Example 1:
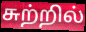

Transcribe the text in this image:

சுற்றில்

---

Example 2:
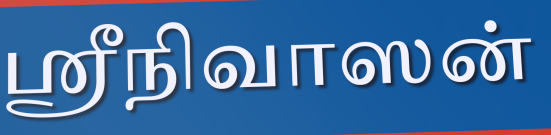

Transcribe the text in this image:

ஸ்ரீநிவாஸன்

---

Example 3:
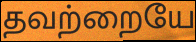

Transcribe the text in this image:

தவற்றையே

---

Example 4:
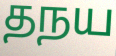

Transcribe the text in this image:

தநய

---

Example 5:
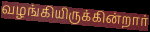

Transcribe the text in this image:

வழங்கியிருக்கின்றார்